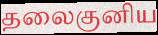
தலைகுனிய